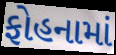
ફોહનામાં